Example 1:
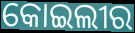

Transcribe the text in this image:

କୋଇଲୀର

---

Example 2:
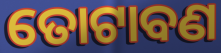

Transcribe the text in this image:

ତୋଟାବଣ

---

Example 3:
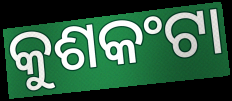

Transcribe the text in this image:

କୁଶକଂଟା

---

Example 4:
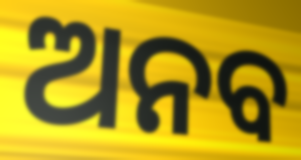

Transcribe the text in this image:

ଅନବ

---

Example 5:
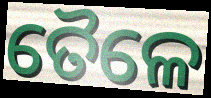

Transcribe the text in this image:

ତୈଳେ